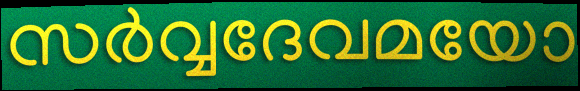
സർവ്വദേവമയോ